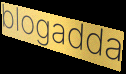
blogadda